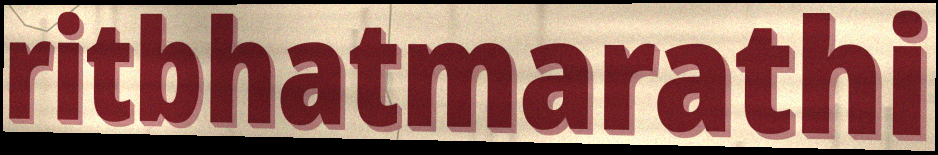
ritbhatmarathi